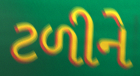
ટળીને